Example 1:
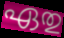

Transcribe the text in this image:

ഏതു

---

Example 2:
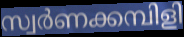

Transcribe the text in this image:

സ്വർണക്കമ്പിളി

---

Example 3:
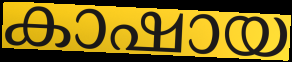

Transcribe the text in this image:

കാഷായ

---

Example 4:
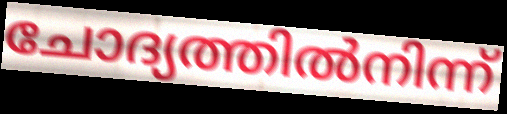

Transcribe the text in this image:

ചോദ്യത്തിൽനിന്ന്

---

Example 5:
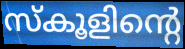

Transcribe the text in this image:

സ്കൂളിന്റെ